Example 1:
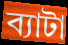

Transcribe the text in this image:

ব্যাটা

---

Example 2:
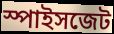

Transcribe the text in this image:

স্পাইসজেট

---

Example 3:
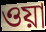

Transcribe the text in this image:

ওয়া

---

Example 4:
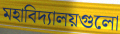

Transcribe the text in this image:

মহাবিদ্যালয়গুলো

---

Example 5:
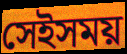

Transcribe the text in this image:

সেইসময়